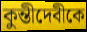
কুন্তীদেবীকে